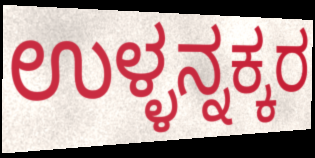
ಉಳ್ಳನ್ನಕ್ಕರ